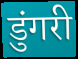
डुंगरी